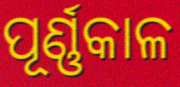
ପୂର୍ଣ୍ଣକାଳ